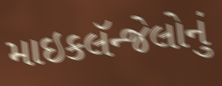
માઇકલૅન્જેલોનું